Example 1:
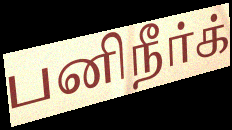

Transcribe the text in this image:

பனிநீர்க்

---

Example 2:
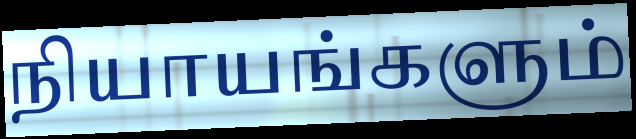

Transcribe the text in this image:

நியாயங்களும்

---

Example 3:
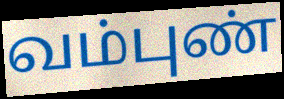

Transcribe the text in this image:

வம்புண்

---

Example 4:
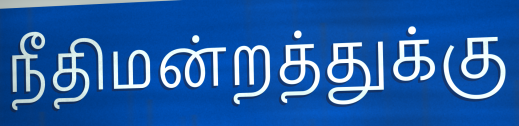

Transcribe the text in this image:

நீதிமன்றத்துக்கு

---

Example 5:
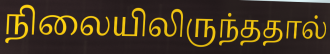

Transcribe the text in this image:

நிலையிலிருந்ததால்